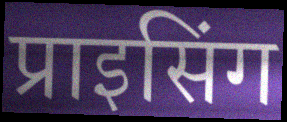
प्राइसिंग